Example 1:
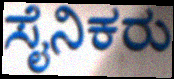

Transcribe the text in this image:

ಸೈನಿಕರು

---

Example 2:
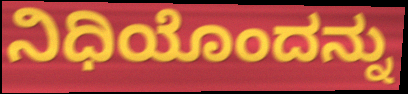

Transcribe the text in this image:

ನಿಧಿಯೊಂದನ್ನು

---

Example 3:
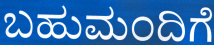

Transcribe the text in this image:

ಬಹುಮಂದಿಗೆ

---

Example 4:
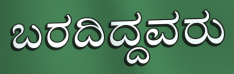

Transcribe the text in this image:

ಬರದಿದ್ದವರು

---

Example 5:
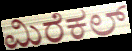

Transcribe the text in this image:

ಮಿರೆಕಲ್